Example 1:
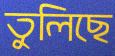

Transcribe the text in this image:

তুলিছে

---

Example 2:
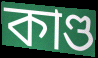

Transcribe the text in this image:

কাণ্ড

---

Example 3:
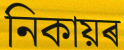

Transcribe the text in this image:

নিকায়ৰ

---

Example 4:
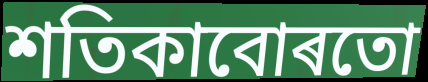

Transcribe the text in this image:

শতিকাবোৰতো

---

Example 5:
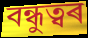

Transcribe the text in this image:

বন্ধুত্বৰ